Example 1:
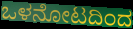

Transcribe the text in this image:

ಒಳನೋಟದಿಂದ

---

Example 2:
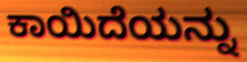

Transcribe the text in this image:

ಕಾಯಿದೆಯನ್ನು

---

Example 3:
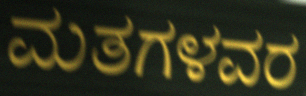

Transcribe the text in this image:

ಮತಗಳವರ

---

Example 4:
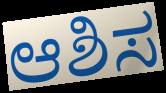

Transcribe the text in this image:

ಆಶಿಸ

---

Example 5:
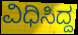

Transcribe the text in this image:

ವಿಧಿಸಿದ್ದ